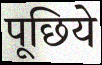
पूछिये